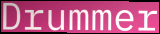
Drummer